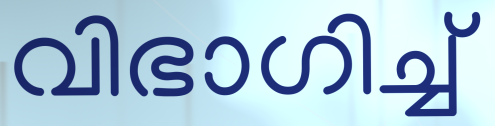
വിഭാഗിച്ച്